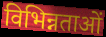
विभिन्नताओं